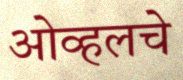
ओव्हलचे